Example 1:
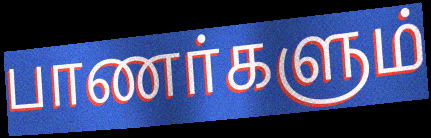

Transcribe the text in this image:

பாணர்களும்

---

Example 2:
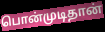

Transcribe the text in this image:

பொன்முடிதான்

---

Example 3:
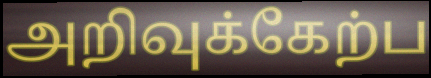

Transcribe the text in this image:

அறிவுக்கேற்ப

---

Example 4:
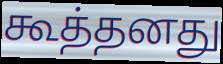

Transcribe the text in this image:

கூத்தனது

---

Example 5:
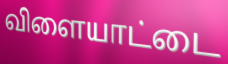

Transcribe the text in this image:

விளையாட்டை